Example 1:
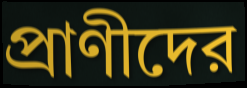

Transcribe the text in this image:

প্রাণীদের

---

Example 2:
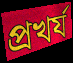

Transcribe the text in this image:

প্রখর্য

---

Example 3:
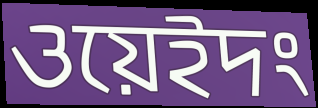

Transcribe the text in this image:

ওয়েইদং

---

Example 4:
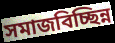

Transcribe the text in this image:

সমাজবিচ্ছিন্ন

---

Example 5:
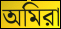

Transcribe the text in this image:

অমিরা